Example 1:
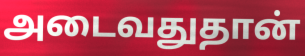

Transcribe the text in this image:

அடைவதுதான்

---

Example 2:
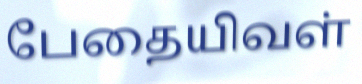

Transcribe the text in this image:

பேதையிவள்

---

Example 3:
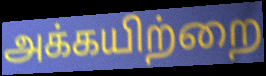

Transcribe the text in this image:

அக்கயிற்றை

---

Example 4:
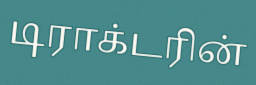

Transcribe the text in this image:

டிராக்டரின்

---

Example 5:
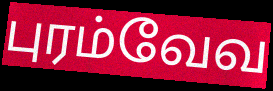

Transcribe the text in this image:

புரம்வேவ